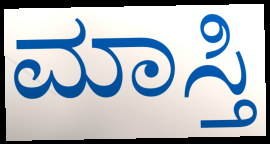
ಮಾಸ್ತಿ